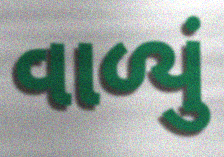
વાળ્યું